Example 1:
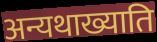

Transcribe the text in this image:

अन्यथाख्याति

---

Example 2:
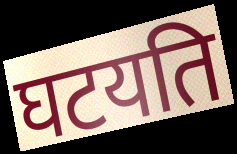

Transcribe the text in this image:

घटयति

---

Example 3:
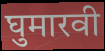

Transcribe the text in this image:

घुमारवी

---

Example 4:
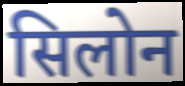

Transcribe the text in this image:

सिलोन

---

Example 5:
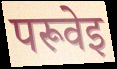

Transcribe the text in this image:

परूवेइ